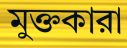
মুক্তকারা